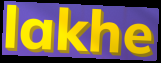
lakhe